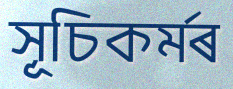
সূচিকৰ্মৰ